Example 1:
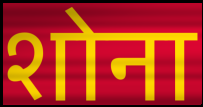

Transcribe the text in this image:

शोना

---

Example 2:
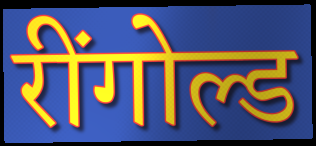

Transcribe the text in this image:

रींगोल्ड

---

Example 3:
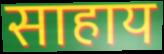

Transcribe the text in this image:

साहाय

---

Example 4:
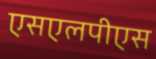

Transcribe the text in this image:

एसएलपीएस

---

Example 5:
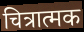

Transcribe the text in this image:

चित्रात्मक